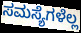
ಸಮಸ್ಯೆಗಳೆಲ್ಲ